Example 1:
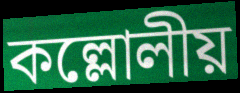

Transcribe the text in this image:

কল্লোলীয়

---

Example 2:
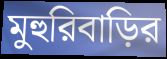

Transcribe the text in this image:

মুহুরিবাড়ির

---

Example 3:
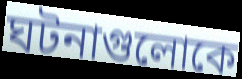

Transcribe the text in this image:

ঘটনাগুলোকে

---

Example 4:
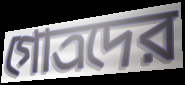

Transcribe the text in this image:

গোত্রদের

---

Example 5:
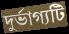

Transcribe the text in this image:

দুর্ভাগ্যটি